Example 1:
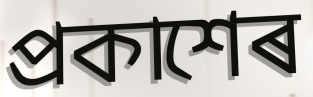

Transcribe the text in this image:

প্ৰকাশেৰ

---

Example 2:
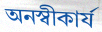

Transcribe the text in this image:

অনস্বীকাৰ্য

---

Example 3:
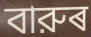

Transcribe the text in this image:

বাৰুৰ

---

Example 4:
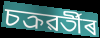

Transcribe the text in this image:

চক্ৰৱৰ্তীৰ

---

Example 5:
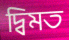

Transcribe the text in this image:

দ্বিমত